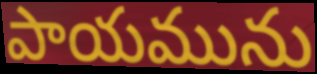
పాయమును